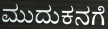
ಮುದುಕನಗೆ